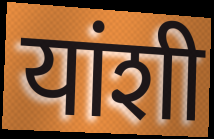
यांशी